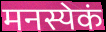
मनस्येकं